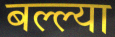
बल्ल्या